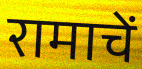
रामाचें